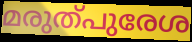
മരുത്പുരേശ